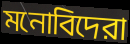
মনোবিদেরা